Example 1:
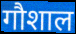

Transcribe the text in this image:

गौशाल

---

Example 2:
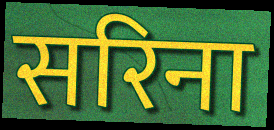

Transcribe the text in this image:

सरिना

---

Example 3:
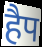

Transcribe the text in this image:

हैप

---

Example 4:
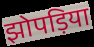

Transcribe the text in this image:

झोपड़िया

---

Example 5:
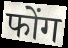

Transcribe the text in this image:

फोंग